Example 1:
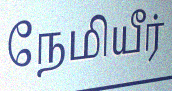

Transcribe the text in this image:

நேமியீர்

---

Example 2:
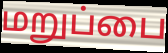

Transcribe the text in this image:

மறுப்பை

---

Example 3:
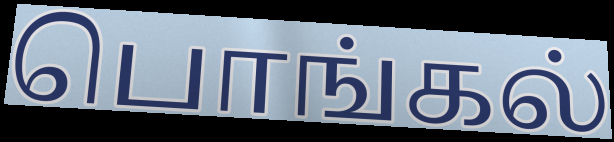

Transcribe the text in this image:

பொங்கல்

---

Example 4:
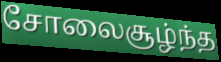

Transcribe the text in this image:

சோலைசூழ்ந்த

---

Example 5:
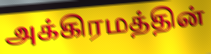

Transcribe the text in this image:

அக்கிரமத்தின்